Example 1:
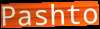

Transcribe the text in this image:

Pashto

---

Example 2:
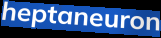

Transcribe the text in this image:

heptaneuron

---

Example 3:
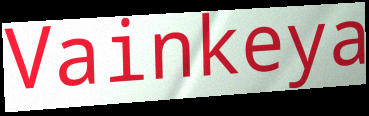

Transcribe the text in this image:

Vainkeya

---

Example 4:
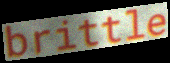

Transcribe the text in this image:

brittle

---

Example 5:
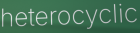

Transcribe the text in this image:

heterocyclic